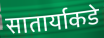
सातार्याकडे